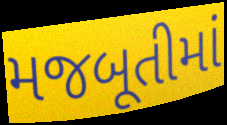
મજબૂતીમાં